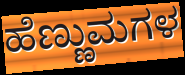
ಹೆಣ್ಣುಮಗಳ